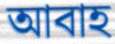
আবাহ